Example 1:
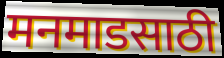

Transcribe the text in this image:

मनमाडसाठी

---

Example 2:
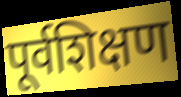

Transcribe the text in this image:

पूर्वशिक्षण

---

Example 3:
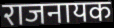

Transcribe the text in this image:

राजनायक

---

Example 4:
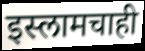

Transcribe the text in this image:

इस्लामचाही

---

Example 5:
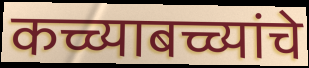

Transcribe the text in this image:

कच्च्याबच्च्यांचे